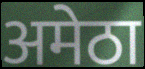
अमेठा